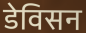
डेविसन